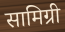
सामिग्री